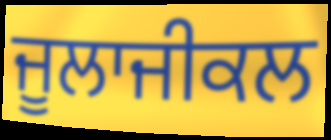
ਜੂਲਾਜੀਕਲ